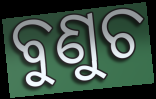
ବୁଣୁଚ